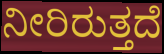
ನೀರಿರುತ್ತದೆ